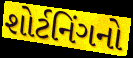
શોર્ટનિંગનો